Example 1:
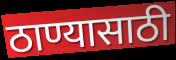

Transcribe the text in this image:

ठाण्यासाठी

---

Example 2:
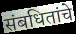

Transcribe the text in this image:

संबधितांचे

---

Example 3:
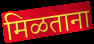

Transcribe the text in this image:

मिळताना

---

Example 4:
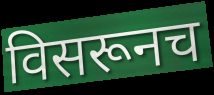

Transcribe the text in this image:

विसरूनच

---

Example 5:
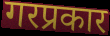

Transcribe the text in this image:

गरप्रकार